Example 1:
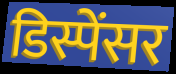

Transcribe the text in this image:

डिस्पेंसर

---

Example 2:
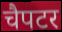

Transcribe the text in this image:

चैपटर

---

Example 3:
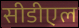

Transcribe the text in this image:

सीडीएल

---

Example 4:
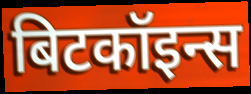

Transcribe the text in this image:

बिटकॉइन्स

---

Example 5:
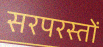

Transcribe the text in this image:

सरपरस्तों